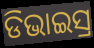
ଡିଭାଇସ୍ର